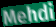
Mehdi